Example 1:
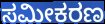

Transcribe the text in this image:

ಸಮೀಕರಣ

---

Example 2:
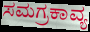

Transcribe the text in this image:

ಸಮಗ್ರಕಾವ್ಯ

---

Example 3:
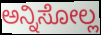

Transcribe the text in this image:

ಅನ್ನಿಸೋಲ್ಲ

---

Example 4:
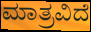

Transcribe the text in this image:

ಮಾತ್ರವಿದೆ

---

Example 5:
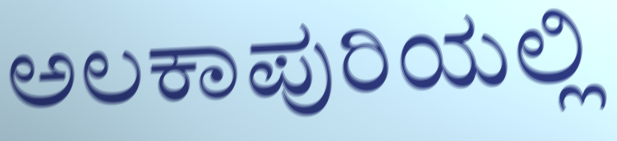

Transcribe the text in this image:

ಅಲಕಾಪುರಿಯಲ್ಲಿ